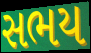
સભય